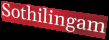
Sothilingam